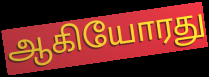
ஆகியோரது